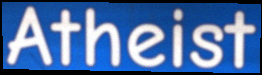
Atheist